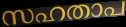
സഹതാപ